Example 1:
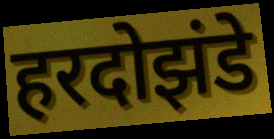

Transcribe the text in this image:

हरदोझंडे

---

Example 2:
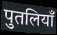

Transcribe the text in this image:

पुतलियाँ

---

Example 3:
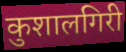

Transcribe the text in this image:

कुशालगिरी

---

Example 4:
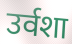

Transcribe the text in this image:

उर्वशा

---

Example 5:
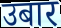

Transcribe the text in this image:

उबार